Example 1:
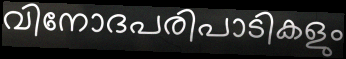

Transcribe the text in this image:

വിനോദപരിപാടികളും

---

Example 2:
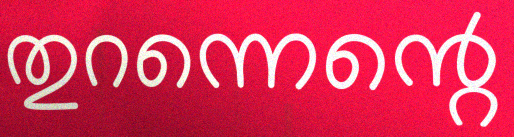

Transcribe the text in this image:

തുറന്നെന്റെ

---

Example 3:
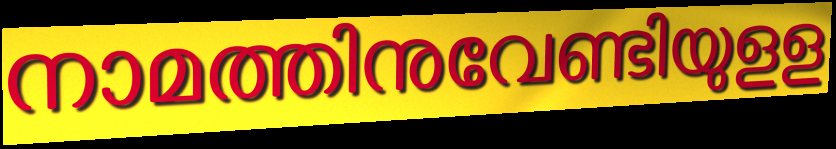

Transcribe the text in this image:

നാമത്തിനുവേണ്ടിയുളള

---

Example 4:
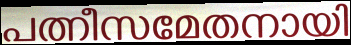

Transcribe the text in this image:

പത്നീസമേതനായി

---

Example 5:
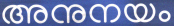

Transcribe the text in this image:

അനുനയം